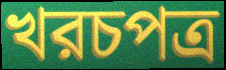
খরচপত্র